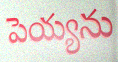
పెయ్యను